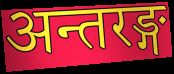
अन्तरङ्ग